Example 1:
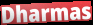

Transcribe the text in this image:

Dharmas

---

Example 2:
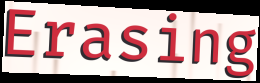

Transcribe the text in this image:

Erasing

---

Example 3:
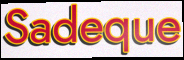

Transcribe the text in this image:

Sadeque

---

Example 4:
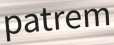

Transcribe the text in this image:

patrem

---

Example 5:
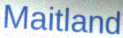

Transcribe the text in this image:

Maitland